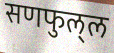
सणफुल्ल